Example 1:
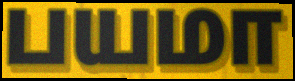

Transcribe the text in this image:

பயமா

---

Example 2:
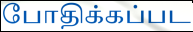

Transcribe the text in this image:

போதிக்கப்பட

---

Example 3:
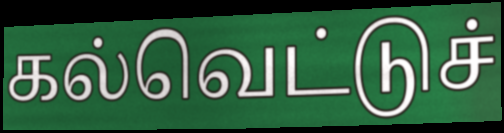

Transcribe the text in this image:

கல்வெட்டுச்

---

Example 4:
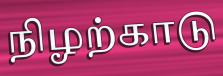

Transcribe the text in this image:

நிழற்காடு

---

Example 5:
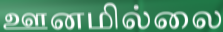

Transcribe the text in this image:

ஊனமில்லை